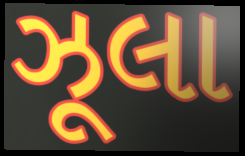
ઝૂલા